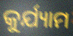
କୁର୍ଯ୍ୟାମ